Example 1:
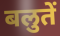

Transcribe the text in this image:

बलुतें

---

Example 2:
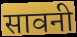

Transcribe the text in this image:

सावनी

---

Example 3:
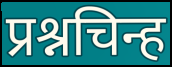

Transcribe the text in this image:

प्रश्नचिन्ह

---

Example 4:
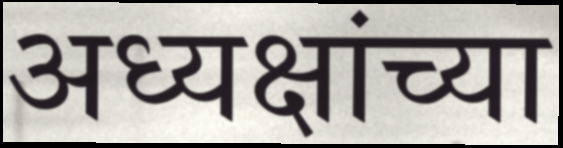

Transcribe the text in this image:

अध्यक्षांच्या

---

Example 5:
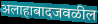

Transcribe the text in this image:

अलाहाबादजवळील